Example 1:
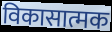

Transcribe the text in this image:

विकासात्मक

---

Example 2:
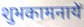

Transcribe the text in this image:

शुभकामनायें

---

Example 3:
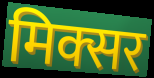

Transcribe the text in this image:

मिक्‍सर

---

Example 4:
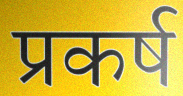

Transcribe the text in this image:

प्रकर्ष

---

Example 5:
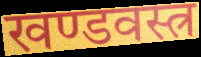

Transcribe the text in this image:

खण्डवस्त्र